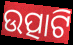
ଉତ୍ପାଟି